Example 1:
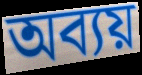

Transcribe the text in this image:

অব্যয়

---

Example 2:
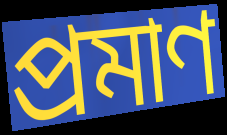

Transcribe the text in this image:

প্ৰমাণ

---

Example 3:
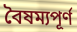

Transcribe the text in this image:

বৈষম্যপূৰ্ণ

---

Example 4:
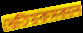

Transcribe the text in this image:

খেতিয়কসকলে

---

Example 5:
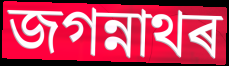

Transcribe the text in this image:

জগন্নাথৰ